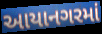
આયાનગરમાં